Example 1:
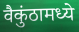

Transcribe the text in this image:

वैकुंठामध्ये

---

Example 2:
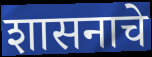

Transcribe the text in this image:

शासनाचे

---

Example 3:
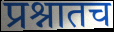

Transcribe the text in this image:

प्रश्नातच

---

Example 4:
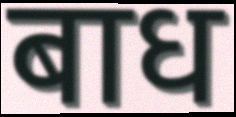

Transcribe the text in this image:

बाध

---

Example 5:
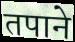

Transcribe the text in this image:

तपाने